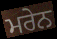
ਮਰੇਨ